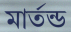
মার্তন্ড